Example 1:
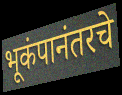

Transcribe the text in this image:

भूकंपानंतरचे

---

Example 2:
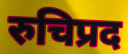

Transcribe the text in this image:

रुचिप्रद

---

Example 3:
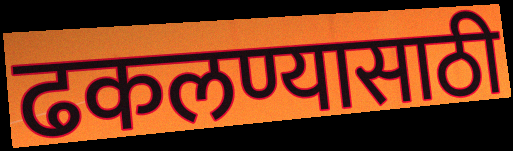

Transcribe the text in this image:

ढकलण्यासाठी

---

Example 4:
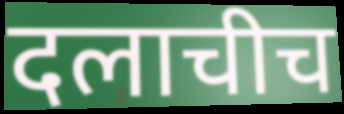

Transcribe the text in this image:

दलाचीच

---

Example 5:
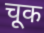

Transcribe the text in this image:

चूक